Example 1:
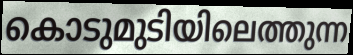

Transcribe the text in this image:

കൊടുമുടിയിലെത്തുന്ന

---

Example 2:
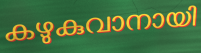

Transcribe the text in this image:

കഴുകുവാനായി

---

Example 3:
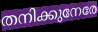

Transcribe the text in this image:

തനിക്കുനേരേ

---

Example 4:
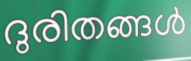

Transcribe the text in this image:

ദുരിതങ്ങൾ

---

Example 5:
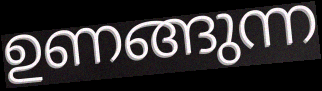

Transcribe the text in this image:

ഉണങ്ങുന്ന